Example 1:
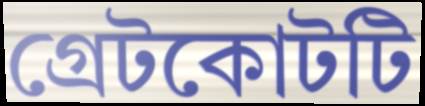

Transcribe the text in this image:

গ্রেটকোটটি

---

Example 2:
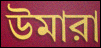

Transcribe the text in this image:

উমারা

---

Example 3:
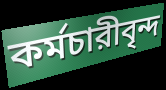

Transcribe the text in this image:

কর্মচারীবৃন্দ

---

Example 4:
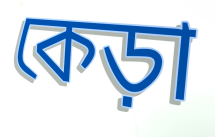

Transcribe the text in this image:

কেড়া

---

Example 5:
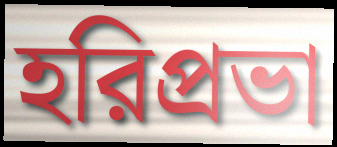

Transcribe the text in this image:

হরিপ্রভা